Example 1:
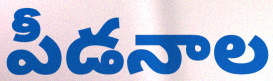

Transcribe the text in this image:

పీడనాల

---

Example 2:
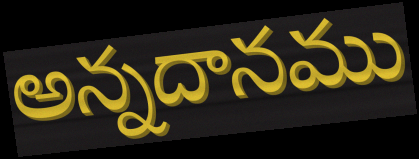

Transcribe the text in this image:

అన్నదానము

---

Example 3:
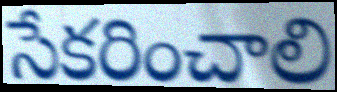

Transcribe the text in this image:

సేకరించాలి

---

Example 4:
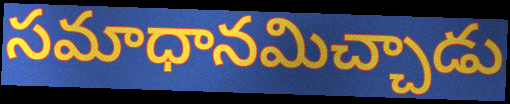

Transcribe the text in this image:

సమాధానమిచ్చాడు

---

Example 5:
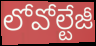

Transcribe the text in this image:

లోవోల్టేజీ